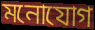
মনোযোগ